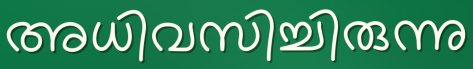
അധിവസിച്ചിരുന്നു